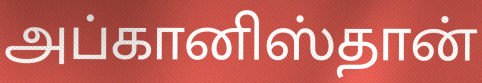
அப்கானிஸ்தான்